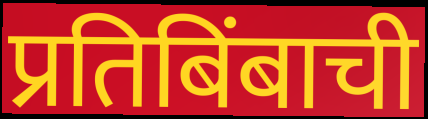
प्रतिबिंबाची